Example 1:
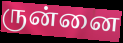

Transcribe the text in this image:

ருன்னை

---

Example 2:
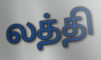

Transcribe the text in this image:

லத்தி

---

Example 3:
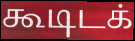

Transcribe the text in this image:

கூடிடக்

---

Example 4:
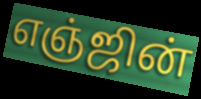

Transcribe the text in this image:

எஞ்ஜின்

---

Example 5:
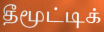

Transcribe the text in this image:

தீமூட்டிக்